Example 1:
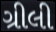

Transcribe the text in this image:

ગ્રીલી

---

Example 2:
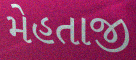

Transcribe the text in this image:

મેહતાજી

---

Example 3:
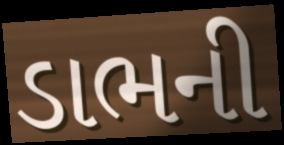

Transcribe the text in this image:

ડાભની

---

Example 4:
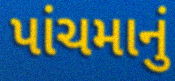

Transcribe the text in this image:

પાંચમાનું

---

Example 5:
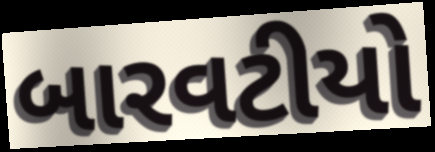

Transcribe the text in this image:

બારવટીયો